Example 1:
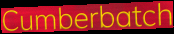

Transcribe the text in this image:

Cumberbatch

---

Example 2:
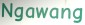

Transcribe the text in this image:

Ngawang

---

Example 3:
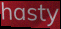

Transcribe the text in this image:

hasty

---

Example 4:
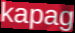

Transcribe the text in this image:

kapag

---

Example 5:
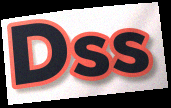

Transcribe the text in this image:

Dss